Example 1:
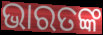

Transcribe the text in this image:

ଭାରତଙ୍କ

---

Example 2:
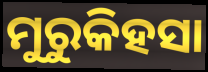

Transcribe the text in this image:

ମୁରୁକିହସା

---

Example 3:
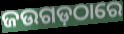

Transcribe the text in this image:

ଜଉଗଡ଼ଠାରେ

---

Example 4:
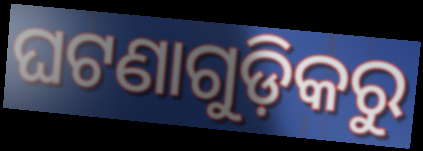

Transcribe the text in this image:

ଘଟଣାଗୁଡ଼ିକରୁ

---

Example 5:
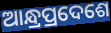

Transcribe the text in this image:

ଆନ୍ଧ୍ରପ୍ରଦେଶେ